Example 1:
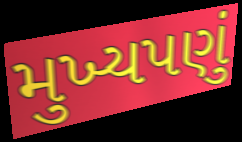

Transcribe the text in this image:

મુખ્યપણું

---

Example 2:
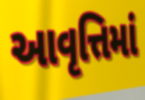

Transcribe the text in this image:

આવૃત્તિમાં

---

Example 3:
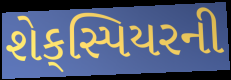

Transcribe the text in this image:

શેક્‌સ્પિયરની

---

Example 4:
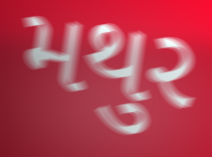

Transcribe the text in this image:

મથુર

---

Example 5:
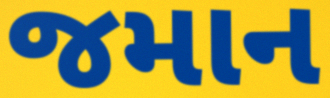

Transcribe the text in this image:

જમાન